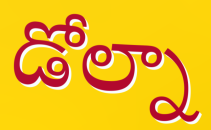
డోల్నా